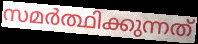
സമർത്ഥിക്കുന്നത്